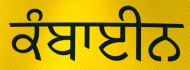
ਕੰਬਾਈਨ